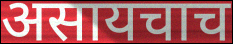
असायचाच